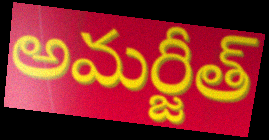
అమర్జీత్